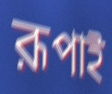
রূপাই